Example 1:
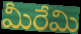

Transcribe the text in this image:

మీరేమి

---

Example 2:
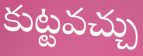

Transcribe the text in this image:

కుట్టవచ్చు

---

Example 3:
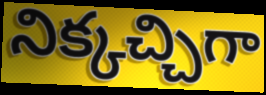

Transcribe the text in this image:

నిక్కచ్చిగా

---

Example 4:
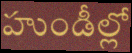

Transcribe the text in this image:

హుండీల్లో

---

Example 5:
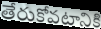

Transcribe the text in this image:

తేరుకోవటానికి